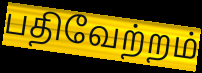
பதிவேற்றம்